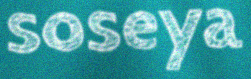
soseya